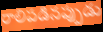
రాలిపడినప్పుడు